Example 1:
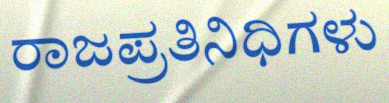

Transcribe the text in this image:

ರಾಜಪ್ರತಿನಿಧಿಗಳು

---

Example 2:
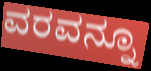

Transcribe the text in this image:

ವರವನ್ನೂ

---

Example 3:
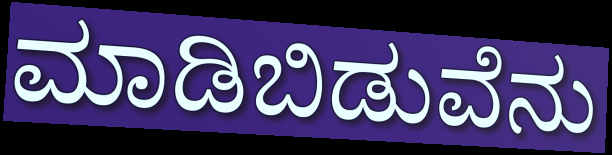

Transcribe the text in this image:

ಮಾಡಿಬಿಡುವೆನು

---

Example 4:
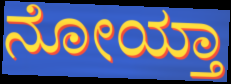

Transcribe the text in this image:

ನೋಯ್ತಾ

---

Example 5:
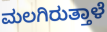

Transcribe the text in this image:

ಮಲಗಿರುತ್ತಾಳೆ